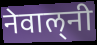
नेवाल्नी